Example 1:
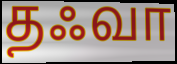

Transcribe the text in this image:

தஃவா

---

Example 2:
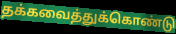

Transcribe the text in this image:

தக்கவைத்துக்கொண்டு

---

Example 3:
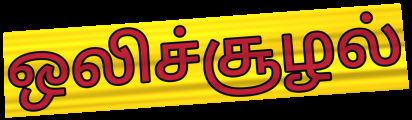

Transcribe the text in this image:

ஒலிச்சூழல்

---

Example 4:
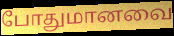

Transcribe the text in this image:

போதுமானவை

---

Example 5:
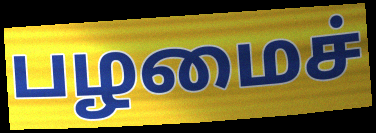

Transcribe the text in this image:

பழமைச்